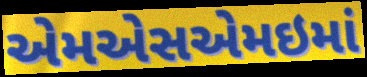
એમએસએમઇમાં